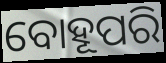
ବୋହୂପରି